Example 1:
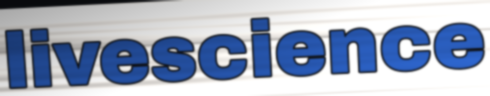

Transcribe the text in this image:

livescience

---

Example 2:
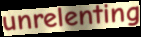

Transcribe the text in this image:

unrelenting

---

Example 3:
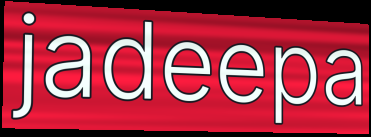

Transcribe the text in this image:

jadeepa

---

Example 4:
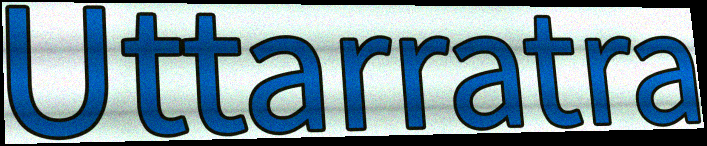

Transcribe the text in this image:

Uttarratra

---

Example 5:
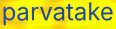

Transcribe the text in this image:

parvatake